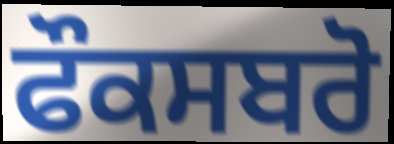
ਫੌਕਸਬਰੋ